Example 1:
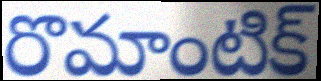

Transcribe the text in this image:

రొమాంటిక్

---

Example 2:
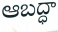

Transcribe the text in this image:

ఆబద్ధా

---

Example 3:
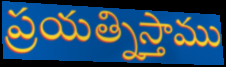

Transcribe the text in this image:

ప్రయత్నిస్తాము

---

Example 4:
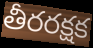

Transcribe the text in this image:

తీరరక్షక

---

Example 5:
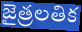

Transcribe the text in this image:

జైత్రలతిక